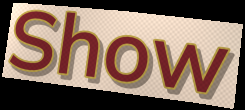
Show